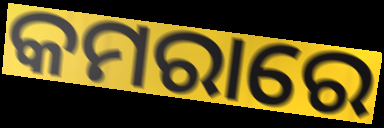
କମରାରେ